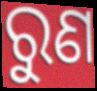
ରୁଣ